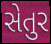
સેતુર